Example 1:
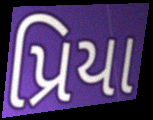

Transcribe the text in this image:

પ્રિયા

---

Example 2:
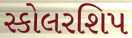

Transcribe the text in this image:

સ્કોલરશિપ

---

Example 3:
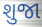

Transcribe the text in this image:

શુજા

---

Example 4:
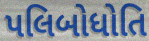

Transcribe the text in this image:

પલિબોધોતિ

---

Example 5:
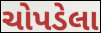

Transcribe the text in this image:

ચોપડેલા